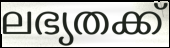
ലഭ്യതക്ക്